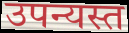
उपन्यस्त